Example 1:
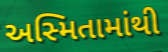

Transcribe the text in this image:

અસ્મિતામાંથી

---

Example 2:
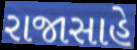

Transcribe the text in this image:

રાજાસાહે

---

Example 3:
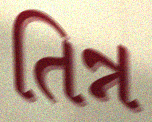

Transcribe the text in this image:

તિન્ન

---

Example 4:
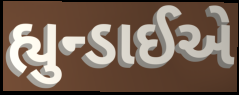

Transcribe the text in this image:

હ્યુન્ડાઈએ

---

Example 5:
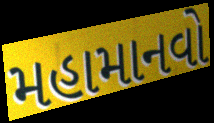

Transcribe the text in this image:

મહામાનવો